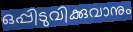
ഒപ്പിടുവിക്കുവാനും